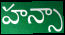
హన్సా